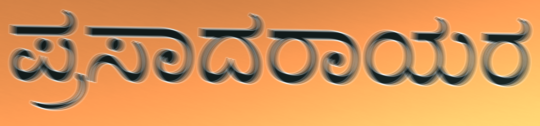
ಪ್ರಸಾದರಾಯರ